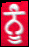
ਨੂਂੰ